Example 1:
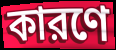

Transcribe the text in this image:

কারণে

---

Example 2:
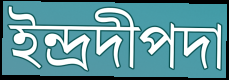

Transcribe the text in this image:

ইন্দ্রদীপদা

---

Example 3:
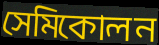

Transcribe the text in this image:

সেমিকোলন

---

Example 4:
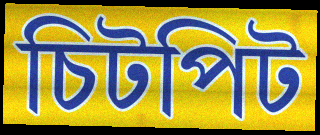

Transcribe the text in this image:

চিটপিট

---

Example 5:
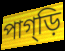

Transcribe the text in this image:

পাগ্ড়ি